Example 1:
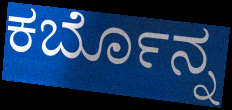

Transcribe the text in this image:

ಕರ್ಬೊನ್ನ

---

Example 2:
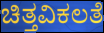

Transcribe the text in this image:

ಚಿತ್ತವಿಕಲತೆ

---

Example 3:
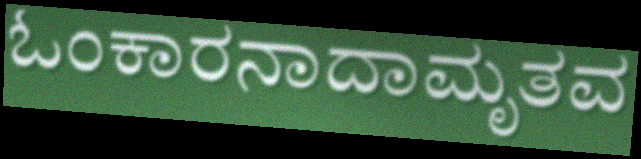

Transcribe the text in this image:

ಓಂಕಾರನಾದಾಮೃತವ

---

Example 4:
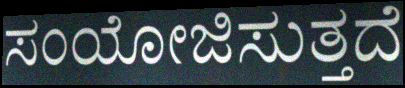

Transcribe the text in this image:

ಸಂಯೋಜಿಸುತ್ತದೆ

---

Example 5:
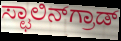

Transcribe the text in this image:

ಸ್ಟಾಲಿನ್‌ಗ್ರಾಡ್